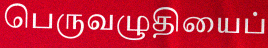
பெருவழுதியைப்